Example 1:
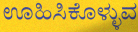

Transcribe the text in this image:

ಊಹಿಸಿಕೊಳ್ಳುವ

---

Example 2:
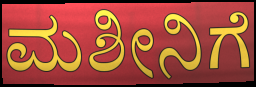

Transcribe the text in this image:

ಮಶೀನಿಗೆ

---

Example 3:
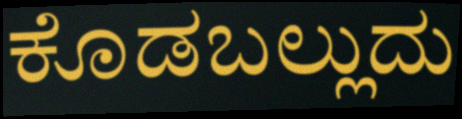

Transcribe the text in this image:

ಕೊಡಬಲ್ಲುದು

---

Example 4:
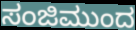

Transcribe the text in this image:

ಸಂಜಿಮುಂದ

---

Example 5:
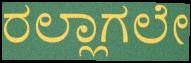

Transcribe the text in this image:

ರಲ್ಲಾಗಲೇ